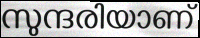
സുന്ദരിയാണ്